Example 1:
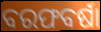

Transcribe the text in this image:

ବରଫବର୍ଷା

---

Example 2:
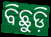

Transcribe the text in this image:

ବିଛୁଡ଼ି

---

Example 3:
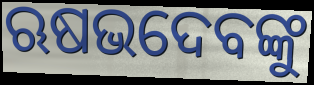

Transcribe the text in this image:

ଋଷଭଦେବଙ୍କୁ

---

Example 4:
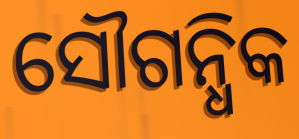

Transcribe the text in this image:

ସୌଗନ୍ଧିକ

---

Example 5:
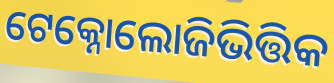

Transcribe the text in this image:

ଟେକ୍ନୋଲୋଜିଭିତ୍ତିକ